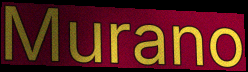
Murano